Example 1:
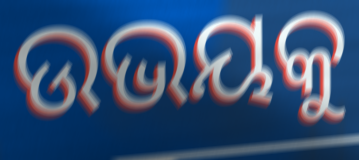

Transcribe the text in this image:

ଉଭୟକୁ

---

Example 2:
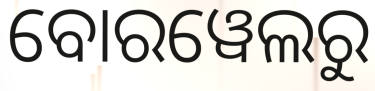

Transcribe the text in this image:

ବୋରୱେଲରୁ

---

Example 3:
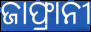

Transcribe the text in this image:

ଜାଫ୍ରାନୀ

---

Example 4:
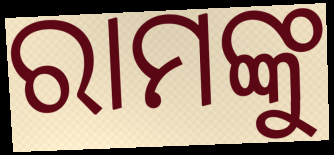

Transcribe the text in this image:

ରାମଙ୍କୁ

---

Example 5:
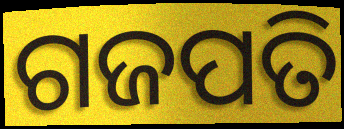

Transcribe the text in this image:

ଗଜପତି